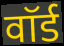
वॉर्ड